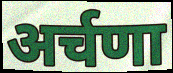
अर्चणा